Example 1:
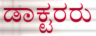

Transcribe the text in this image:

ಡಾಕ್ಟರರು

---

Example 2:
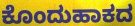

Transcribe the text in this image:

ಕೊಂದುಹಾಕದ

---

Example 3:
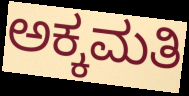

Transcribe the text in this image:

ಅಕ್ಕಮತಿ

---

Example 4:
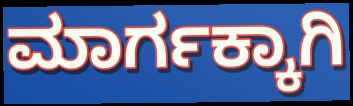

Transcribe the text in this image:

ಮಾರ್ಗಕ್ಕಾಗಿ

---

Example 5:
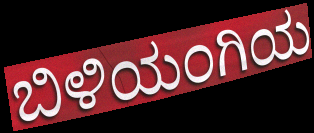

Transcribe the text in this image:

ಬಿಳಿಯಂಗಿಯ